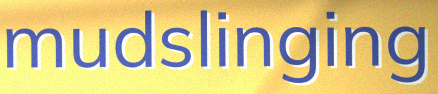
mudslinging